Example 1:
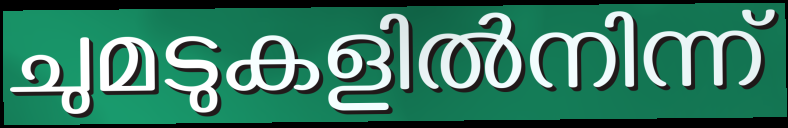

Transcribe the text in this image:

ചുമടുകളിൽനിന്ന്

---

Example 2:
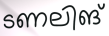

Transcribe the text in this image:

ടണലിങ്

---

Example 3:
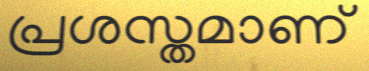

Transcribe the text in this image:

പ്രശസ്തമാണ്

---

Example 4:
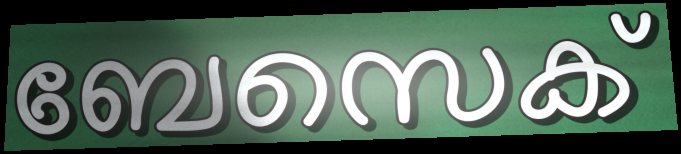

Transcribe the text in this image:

ബേസെക്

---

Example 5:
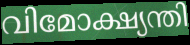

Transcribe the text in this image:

വിമോക്ഷ്യന്തി